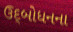
ઉદ્‌બોધનના